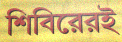
শিবিরেরই